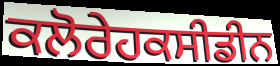
ਕਲੋਰੇਹਕਸੀਡੀਨ